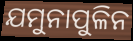
ଯମୁନାପୁଳିନ